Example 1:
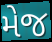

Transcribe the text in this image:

મેજ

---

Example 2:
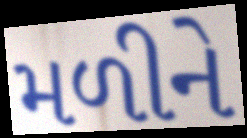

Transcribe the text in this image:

મળીને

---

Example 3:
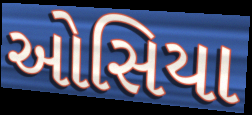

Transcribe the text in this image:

ઓસિયા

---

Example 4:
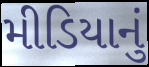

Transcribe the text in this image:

મીડિયાનું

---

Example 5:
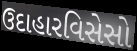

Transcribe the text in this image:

ઉદાહારવિસેસો